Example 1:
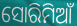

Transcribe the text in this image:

ସୋରିମିଆଁ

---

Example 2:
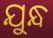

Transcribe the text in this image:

ଯୁନ୍ଧ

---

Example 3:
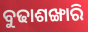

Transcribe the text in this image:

ବୁଢାଶଙ୍ଖାରି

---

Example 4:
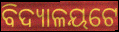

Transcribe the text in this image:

ବିଦ୍ୟାଳୟଟେ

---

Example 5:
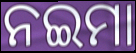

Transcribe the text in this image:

ନଇମା